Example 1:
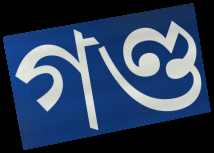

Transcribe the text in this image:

গণ্ড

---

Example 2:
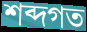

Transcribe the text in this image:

শব্দগত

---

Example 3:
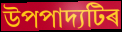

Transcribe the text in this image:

উপপাদ্যটিৰ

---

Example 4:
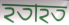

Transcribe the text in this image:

হতাহত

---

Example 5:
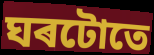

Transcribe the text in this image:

ঘৰটোতে